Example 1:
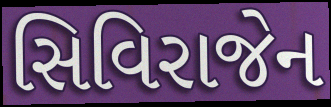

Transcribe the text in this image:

સિવિરાજેન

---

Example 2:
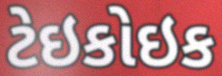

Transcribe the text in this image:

ટેઇકોઇક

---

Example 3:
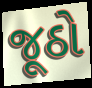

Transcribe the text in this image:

જૂઠો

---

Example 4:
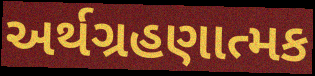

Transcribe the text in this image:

અર્થગ્રહણાત્મક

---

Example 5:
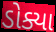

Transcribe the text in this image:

ડોક્યા